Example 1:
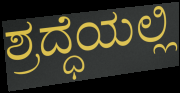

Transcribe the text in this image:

ಶ್ರದ್ಧೆಯಲ್ಲಿ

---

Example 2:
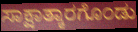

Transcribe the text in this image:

ಸಾಕ್ಷಾತ್ಕಾರಗೊಂಡು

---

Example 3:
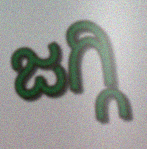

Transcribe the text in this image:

ಜಗ್ಗಿ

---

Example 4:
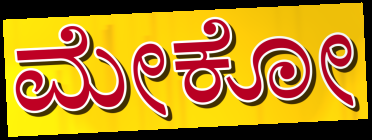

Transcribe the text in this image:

ಮೇಕೋ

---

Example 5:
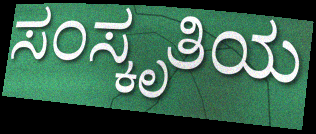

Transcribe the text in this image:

ಸಂಸ್ಕೃತಿಯ